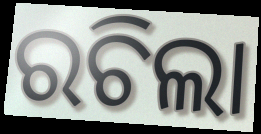
ରଚିଲା